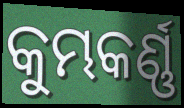
କୁମ୍ଭକର୍ଣ୍ଣ